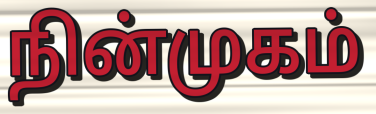
நின்முகம்